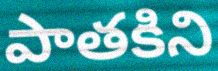
పాతకిని